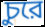
চুরে